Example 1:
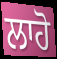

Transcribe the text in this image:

ਲਾਹੋ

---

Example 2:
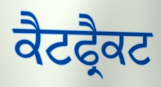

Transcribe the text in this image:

ਕੈਟਫ੍ਰੈਕਟ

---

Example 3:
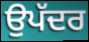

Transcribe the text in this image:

ਉਪੱਦਰ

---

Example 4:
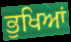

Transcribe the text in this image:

ਭੁਖਿਆਂ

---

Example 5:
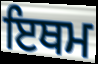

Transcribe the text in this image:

ਇਥਮ